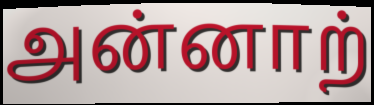
அன்னாற்